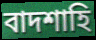
বাদশাহি